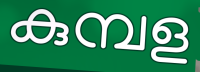
കുമ്പള